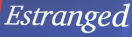
Estranged